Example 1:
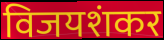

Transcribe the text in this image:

विजयशंकर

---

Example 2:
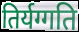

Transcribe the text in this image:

तिर्यग्गति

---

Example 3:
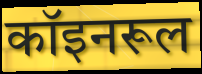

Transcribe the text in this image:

कॉइनरूल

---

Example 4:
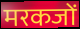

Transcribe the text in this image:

मरकजों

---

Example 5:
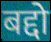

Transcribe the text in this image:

बद्दो